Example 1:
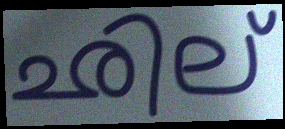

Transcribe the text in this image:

ഛില്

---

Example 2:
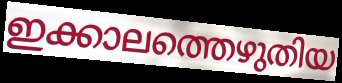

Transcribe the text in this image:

ഇക്കാലത്തെഴുതിയ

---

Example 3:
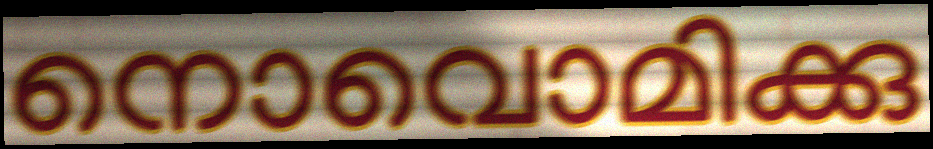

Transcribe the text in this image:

നൊവൊമിക്കു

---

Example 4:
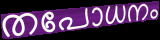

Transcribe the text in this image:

തപോധനം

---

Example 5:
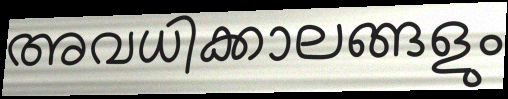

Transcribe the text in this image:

അവധിക്കാലങ്ങളും